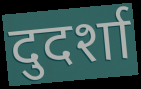
दुदर्शा